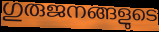
ഗുരുജനങ്ങളുടെ